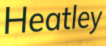
Heatley